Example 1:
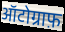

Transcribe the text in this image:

ऑटोग्राफ़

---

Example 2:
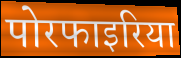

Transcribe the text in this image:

पोरफाइरिया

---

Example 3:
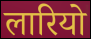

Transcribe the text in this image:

लारियो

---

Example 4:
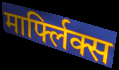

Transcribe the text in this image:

मार्फ्लिक्स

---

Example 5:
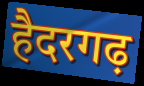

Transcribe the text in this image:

हैदरगढ़